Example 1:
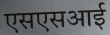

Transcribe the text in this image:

एसएसआई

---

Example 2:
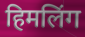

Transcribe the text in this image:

हिमलिंग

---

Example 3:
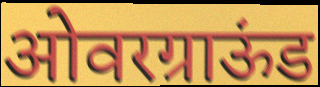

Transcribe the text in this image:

ओवरग्राऊंड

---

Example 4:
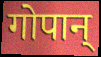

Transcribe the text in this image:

गोपान्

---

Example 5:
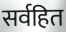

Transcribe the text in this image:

सर्वहित